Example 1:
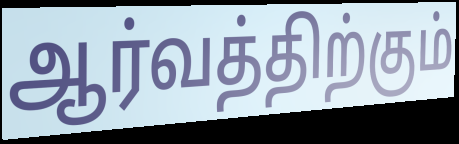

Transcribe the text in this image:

ஆர்வத்திற்கும்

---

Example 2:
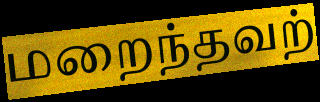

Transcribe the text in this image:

மறைந்தவற்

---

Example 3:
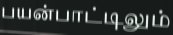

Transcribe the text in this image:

பயன்பாட்டிலும்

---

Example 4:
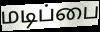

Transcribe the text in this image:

மடிப்பை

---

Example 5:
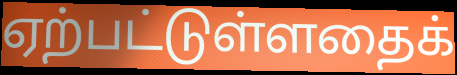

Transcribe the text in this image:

ஏற்பட்டுள்ளதைக்